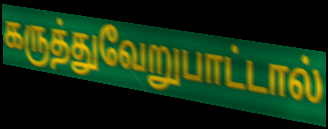
கருத்துவேறுபாட்டால்